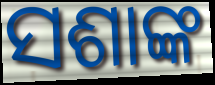
ସଶାଙ୍କ